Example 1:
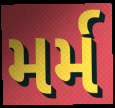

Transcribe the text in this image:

મર્મ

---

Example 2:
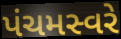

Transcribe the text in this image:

પંચમસ્વરે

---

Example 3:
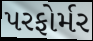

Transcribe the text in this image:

પરફોર્મર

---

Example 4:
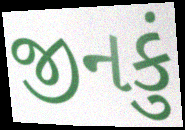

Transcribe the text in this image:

જીનકું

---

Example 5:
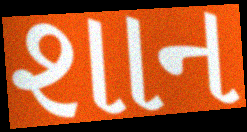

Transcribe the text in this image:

શાન